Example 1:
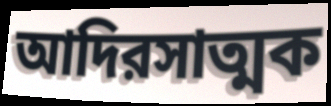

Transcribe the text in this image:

আদিরসাত্মক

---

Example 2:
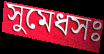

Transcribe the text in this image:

সুমেধসঃ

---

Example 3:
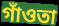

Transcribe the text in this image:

গাঁওতা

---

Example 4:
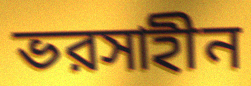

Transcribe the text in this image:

ভরসাহীন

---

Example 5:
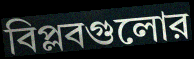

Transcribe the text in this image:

বিপ্লবগুলোর